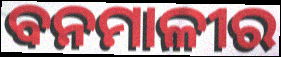
ବନମାଳୀର